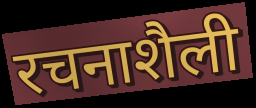
रचनाशैली